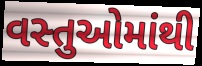
વસ્તુઓમાંથી